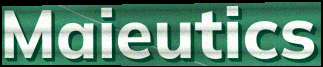
Maieutics